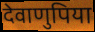
देवाणुपिया